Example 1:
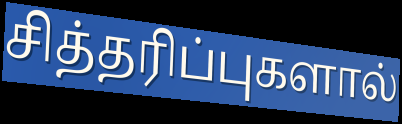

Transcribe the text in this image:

சித்தரிப்புகளால்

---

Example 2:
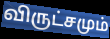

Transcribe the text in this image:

விருட்சமும்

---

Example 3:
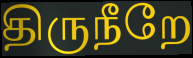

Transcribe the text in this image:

திருநீறே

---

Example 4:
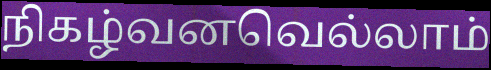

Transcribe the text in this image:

நிகழ்வனவெல்லாம்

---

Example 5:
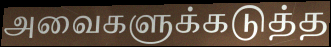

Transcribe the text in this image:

அவைகளுக்கடுத்த